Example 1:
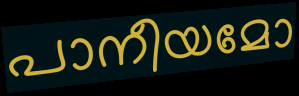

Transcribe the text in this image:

പാനീയമോ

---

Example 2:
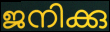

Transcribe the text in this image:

ജനിക്കു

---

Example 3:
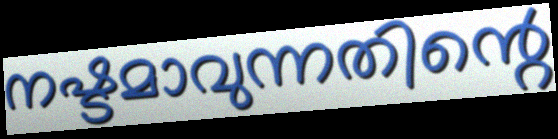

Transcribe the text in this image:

നഷ്ടമാവുന്നതിന്റെ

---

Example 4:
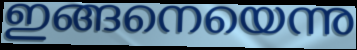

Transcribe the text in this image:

ഇങ്ങനെയെന്നു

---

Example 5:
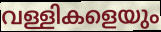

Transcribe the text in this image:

വള്ളികളെയും